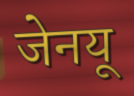
जेनयू